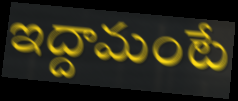
ఇద్దామంటే